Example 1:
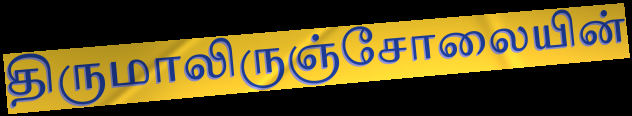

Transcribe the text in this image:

திருமாலிருஞ்சோலையின்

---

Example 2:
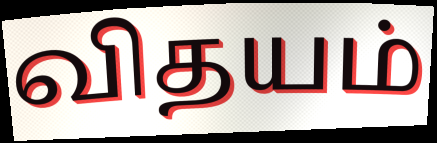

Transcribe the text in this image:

விதயம்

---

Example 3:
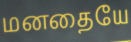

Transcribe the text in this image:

மனதையே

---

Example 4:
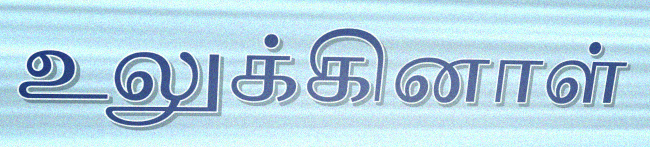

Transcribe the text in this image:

உலுக்கினாள்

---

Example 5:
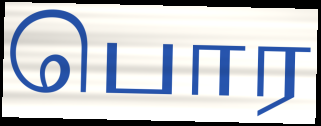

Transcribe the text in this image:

பொர